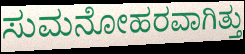
ಸುಮನೋಹರವಾಗಿತ್ತು